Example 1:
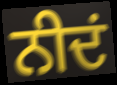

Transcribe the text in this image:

ਨੀਦਂ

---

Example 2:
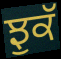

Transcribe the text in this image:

ਝੁਕੱ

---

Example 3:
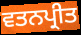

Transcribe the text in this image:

ਵਤਨਪ੍ਰੀਤ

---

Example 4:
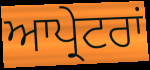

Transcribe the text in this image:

ਆਪ੍ਰੇਟਰਾਂ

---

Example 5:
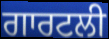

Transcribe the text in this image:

ਗਾਰਟਲੀ